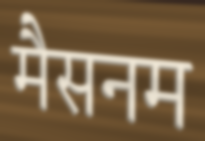
मैसनम